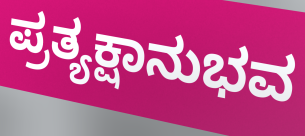
ಪ್ರತ್ಯಕ್ಷಾನುಭವ